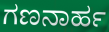
ಗಣನಾರ್ಹ